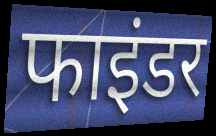
फाइंडर